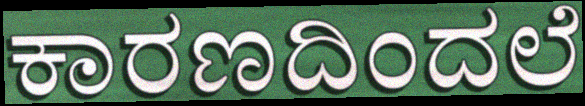
ಕಾರಣದಿಂದಲೆ